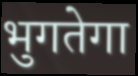
भुगतेगा